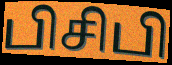
பிசிபி